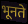
भूनते